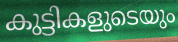
കുട്ടികളുടെയും